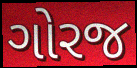
ગોરજ